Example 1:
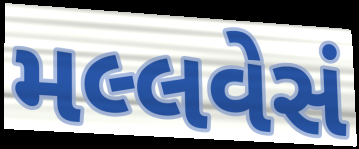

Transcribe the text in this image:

મલ્લવેસં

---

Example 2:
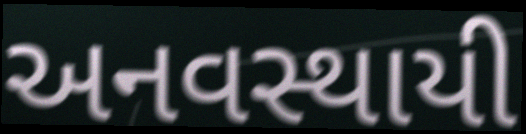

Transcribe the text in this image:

અનવસ્થાયી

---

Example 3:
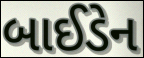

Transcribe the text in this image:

બાઈડેન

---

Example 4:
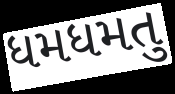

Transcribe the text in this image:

ધમધમતુ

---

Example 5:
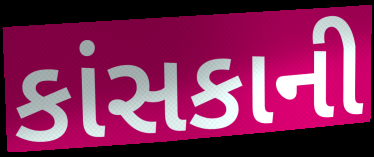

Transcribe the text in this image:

કાંસકાની